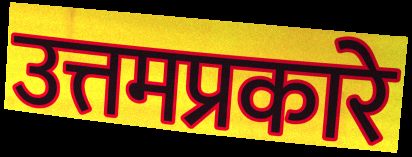
उत्तमप्रकारे